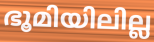
ഭൂമിയിലില്ല